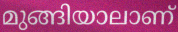
മുങ്ങിയാലാണ്